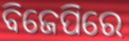
ବିଜେପିରେ